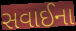
સવાઈના